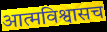
आत्मविश्वासच